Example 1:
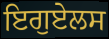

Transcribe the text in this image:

ਇਗੁਏਲਸ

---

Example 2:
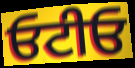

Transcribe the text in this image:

ਓਟੀਓ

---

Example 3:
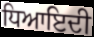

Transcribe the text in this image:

ਧਿਆਇਦੀ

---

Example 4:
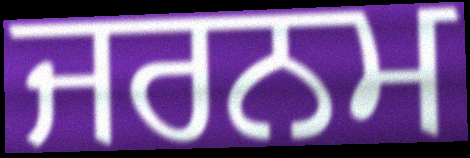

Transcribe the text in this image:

ਜਰਨਮ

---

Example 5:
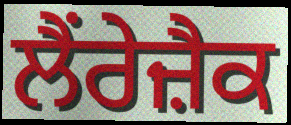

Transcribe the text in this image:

ਲੈਂਰੇਜ਼ੈਕ